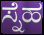
ಸ್ನೆಹ